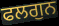
ਫਲਗੁਨ